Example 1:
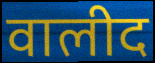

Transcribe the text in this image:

वालीद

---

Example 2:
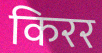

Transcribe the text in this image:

किरर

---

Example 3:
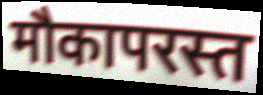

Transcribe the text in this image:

मौकापरस्त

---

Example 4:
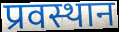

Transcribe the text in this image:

प्रवस्थान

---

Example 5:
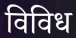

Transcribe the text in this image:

विविध